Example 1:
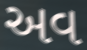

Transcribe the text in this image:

અવ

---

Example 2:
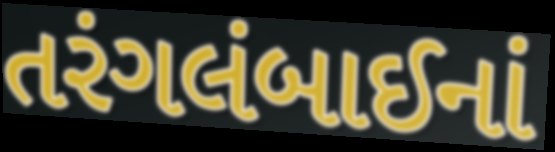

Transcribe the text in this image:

તરંગલંબાઈનાં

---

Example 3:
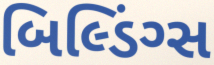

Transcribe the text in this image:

બિલ્ડિંગ્સ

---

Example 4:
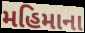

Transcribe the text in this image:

મહિમાના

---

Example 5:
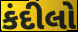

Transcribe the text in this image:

કંદીલો